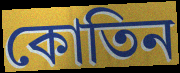
কোতিন